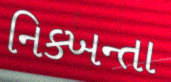
નિક્ખન્તા